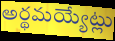
అర్థమయ్యేట్లు